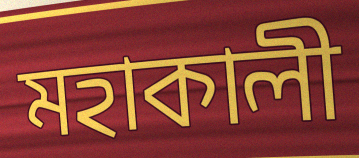
মহাকালী